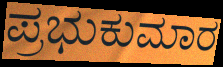
ಪ್ರಭುಕುಮಾರ